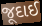
જૂદાઈ